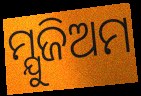
ମ୍ଯୁଜିଅମ